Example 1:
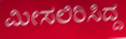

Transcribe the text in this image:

ಮೀಸಲಿರಿಸಿದ್ದ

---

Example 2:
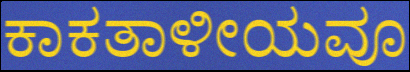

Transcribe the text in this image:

ಕಾಕತಾಳೀಯವೂ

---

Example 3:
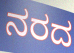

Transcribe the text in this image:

ನರದ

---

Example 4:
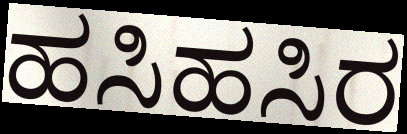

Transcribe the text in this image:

ಹಸಿಹಸಿರ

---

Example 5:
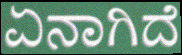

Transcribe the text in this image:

ಏನಾಗಿದೆ